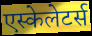
एस्केलेटर्स